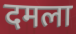
दमला